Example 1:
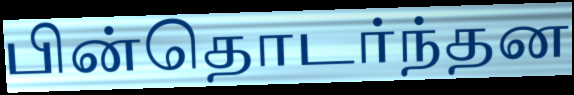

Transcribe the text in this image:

பின்தொடர்ந்தன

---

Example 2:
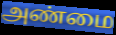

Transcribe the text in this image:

அண்மை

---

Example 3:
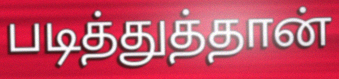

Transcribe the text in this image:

படித்துத்தான்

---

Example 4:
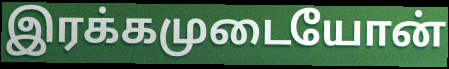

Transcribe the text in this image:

இரக்கமுடையோன்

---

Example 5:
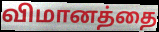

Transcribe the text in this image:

விமானத்தை